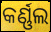
କର୍ଣ୍ଣଲ